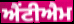
ਐਂਟੀਐਮ